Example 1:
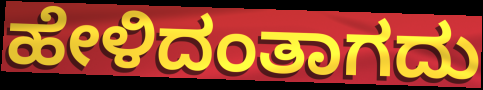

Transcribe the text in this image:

ಹೇಳಿದಂತಾಗದು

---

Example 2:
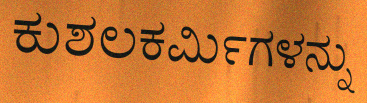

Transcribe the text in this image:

ಕುಶಲಕರ್ಮಿಗಳನ್ನು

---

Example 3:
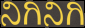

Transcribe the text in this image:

ನಿಗಿನಿಗಿ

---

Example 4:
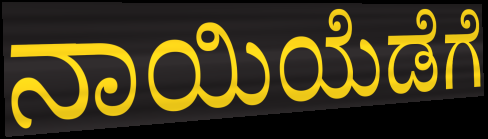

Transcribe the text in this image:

ನಾಯಿಯೆಡೆಗೆ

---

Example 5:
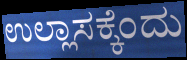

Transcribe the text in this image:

ಉಲ್ಲಾಸಕ್ಕೆಂದು